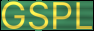
GSPL